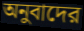
অনুবাদের